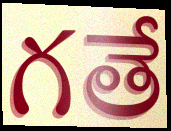
గతే